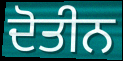
ਦੋਤੀਨ